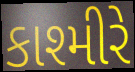
કાશ્મીરે